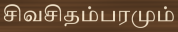
சிவசிதம்பரமும்